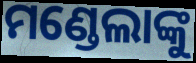
ମଣ୍ଡେଲାଙ୍କୁ